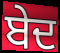
ਬੇਦ